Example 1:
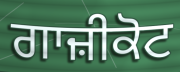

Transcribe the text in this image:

ਗਾਜ਼ੀਕੋਟ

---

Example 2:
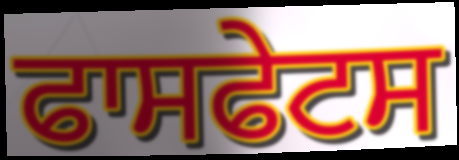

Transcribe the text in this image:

ਫਾਸਫੇਟਸ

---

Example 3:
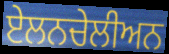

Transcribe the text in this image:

ਏਲਨਚੇਲੀਅਨ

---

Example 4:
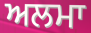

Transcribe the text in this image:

ਅਲਮਾ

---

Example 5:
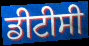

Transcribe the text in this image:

ਡੀਟੀਸੀ